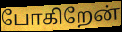
போகிறேன்